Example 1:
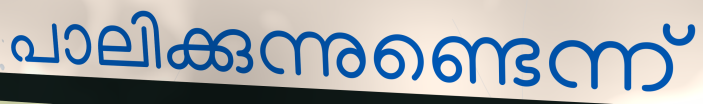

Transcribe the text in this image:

പാലിക്കുന്നുണ്ടെന്ന്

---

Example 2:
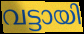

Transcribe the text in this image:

വട്ടായി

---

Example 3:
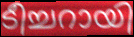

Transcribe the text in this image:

ടീച്ചറായി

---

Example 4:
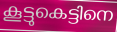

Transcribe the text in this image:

കൂട്ടുകെട്ടിനെ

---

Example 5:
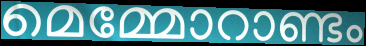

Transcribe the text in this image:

മെമ്മോറാണ്ടം